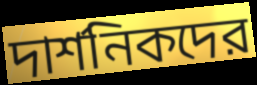
দার্শনিকদের